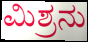
ಮಿಶ್ರನು